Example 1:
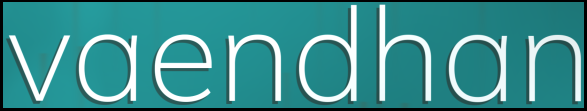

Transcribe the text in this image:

vaendhan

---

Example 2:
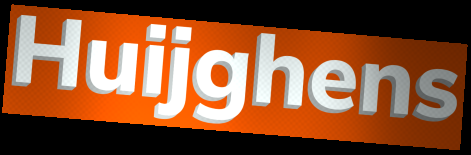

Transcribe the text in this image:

Huijghens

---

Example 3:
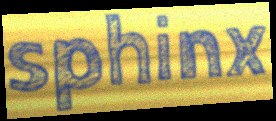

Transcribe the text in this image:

sphinx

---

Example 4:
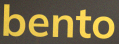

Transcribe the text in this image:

bento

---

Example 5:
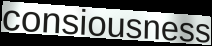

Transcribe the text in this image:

consiousness